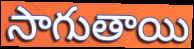
సాగుతాయి